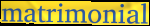
matrimonial